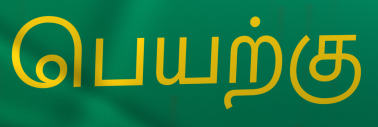
பெயற்கு